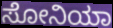
ಸೋನಿಯಾ